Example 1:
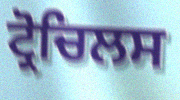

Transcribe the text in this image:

ਟ੍ਰੋਚਿਲਸ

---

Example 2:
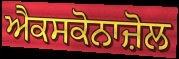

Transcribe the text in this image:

ਐਕਸਕੋਨਾਜ਼ੋਲ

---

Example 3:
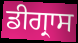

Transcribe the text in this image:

ਡੀਗ੍ਰਾਸ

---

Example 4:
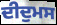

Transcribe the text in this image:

ਦੀਦੁਮਸ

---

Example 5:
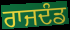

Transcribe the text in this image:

ਰਾਜਦੰਡ